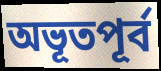
অভূতপূৰ্ব